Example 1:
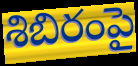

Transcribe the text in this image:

శిబిరంపై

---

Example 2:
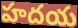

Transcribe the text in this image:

హదయ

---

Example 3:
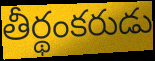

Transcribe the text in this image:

తీర్థంకరుడు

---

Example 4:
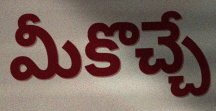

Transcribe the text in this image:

మీకొచ్చే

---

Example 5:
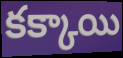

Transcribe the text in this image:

కక్కాయి